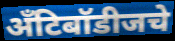
अँटिबॉडीजचे